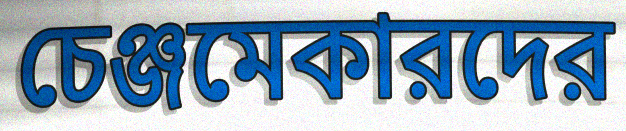
চেঞ্জমেকারদের